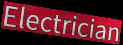
Electrician